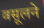
वसूलने